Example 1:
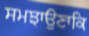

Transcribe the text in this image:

ਸਮਝਾਉਣਾਕਿ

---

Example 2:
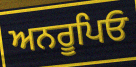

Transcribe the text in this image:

ਅਨਰੂਪਿਓ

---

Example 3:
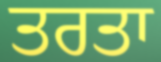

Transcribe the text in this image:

ਤਰਤਾ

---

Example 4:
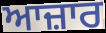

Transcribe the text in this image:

ਆਜ਼ਾਰ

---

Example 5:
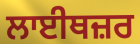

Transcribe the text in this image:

ਲਾਈਥਜ਼ਰ